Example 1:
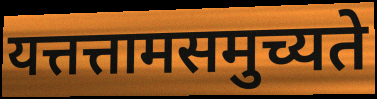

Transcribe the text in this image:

यत्तत्तामसमुच्यते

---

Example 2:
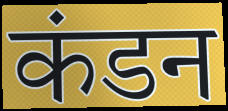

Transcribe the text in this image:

कंडन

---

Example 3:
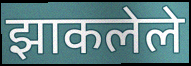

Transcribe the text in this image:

झाकलेले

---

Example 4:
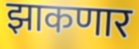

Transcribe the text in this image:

झाकणार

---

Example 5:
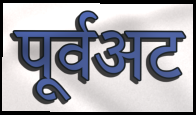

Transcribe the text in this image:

पूर्वअट